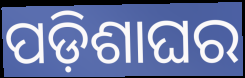
ପଡ଼ିଶାଘର